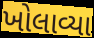
ખોલાવ્યા